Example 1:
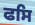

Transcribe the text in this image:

ਫਸਿ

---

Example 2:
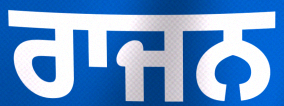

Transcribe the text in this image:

ਰਾਜਨ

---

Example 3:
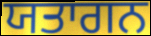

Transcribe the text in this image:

ਯਤਾਗਨ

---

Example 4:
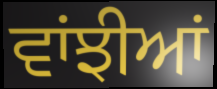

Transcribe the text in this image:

ਵਾਂਝੀਆਂ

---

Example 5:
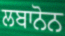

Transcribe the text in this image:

ਲਬਾਨੋਨ